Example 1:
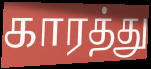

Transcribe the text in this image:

காரத்து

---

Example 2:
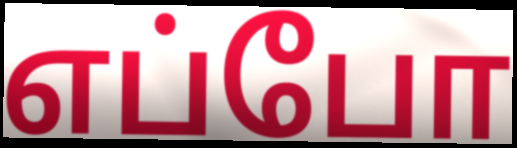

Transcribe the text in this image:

எப்போ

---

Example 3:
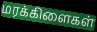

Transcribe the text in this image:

மரக்கிளைகள்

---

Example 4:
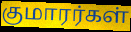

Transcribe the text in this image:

குமாரர்கள்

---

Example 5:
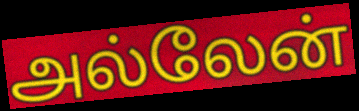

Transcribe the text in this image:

அல்லேன்